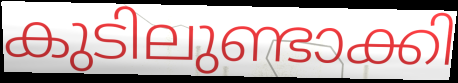
കുടിലുണ്ടാക്കി